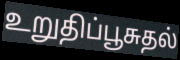
உறுதிப்பூசுதல்